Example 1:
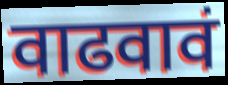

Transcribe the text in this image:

वाढवावं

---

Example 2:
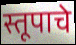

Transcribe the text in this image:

स्तूपाचे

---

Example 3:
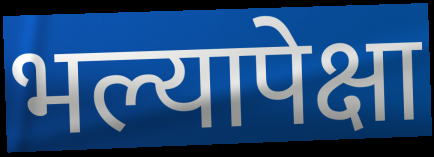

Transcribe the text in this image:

भल्यापेक्षा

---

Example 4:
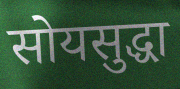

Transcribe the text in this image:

सोयसुद्धा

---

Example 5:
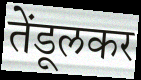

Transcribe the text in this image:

तेंडूलकर